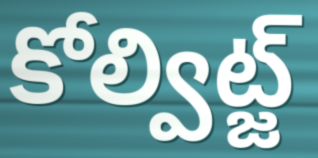
కోల్విట్జ్